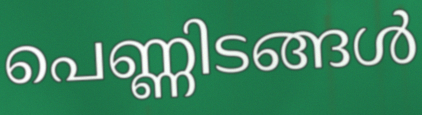
പെണ്ണിടങ്ങൾ